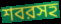
শবরসহ